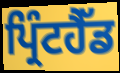
ਪ੍ਰਿੰਟਹੈੱਡ